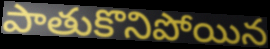
పాతుకొనిపోయిన